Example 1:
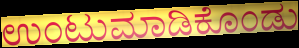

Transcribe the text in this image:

ಉಂಟುಮಾಡಿಕೊಂಡು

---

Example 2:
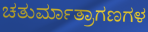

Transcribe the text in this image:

ಚತುರ್ಮಾತ್ರಾಗಣಗಳ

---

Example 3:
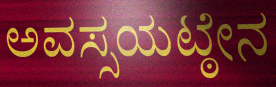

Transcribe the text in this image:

ಅವಸ್ಸಯಟ್ಠೇನ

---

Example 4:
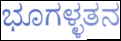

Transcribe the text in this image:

ಭೂಗಳ್ಳತನ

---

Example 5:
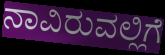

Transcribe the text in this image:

ನಾವಿರುವಲ್ಲಿಗೆ